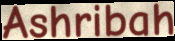
Ashribah